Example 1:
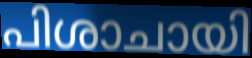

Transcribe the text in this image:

പിശാചായി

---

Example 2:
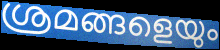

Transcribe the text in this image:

ശ്രമങ്ങളെയും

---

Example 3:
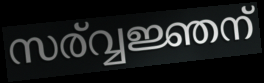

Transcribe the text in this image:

സര്വ്വജ്ഞന്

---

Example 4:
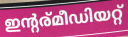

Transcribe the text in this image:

ഇന്റര്മീഡിയറ്റ്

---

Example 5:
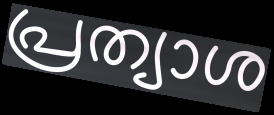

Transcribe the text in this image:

പ്രത്യാശ